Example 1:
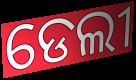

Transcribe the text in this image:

ଡେଲୀ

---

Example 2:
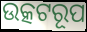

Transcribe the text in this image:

ଉତ୍କଟରୂପ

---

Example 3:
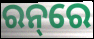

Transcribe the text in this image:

ରନ୍‌ରେ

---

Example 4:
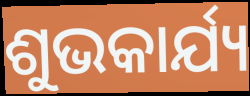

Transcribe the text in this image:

ଶୁଭକାର୍ଯ୍ୟ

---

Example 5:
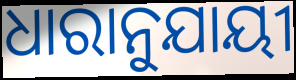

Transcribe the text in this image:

ଧାରାନୁଯାୟୀ